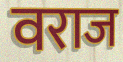
वराज